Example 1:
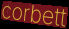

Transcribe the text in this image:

corbett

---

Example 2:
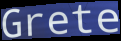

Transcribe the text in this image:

Grete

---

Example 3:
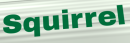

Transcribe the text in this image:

Squirrel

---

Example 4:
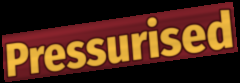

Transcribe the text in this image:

Pressurised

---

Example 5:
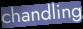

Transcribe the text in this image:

chandling